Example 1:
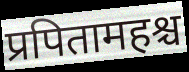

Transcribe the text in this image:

प्रपितामहश्च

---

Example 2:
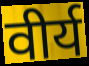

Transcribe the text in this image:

वीर्य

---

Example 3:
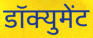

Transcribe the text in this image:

डॉक्युमेंट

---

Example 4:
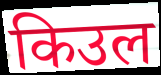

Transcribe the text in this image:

किउल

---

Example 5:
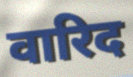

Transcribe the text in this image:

वारिद